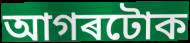
আগৰটোক